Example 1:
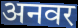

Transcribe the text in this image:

अनवर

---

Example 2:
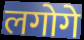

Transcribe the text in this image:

लगोगे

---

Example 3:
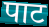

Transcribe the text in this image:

पाट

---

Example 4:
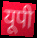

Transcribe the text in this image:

यूपी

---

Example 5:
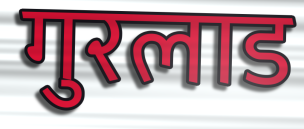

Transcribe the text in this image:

गुरलाड